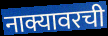
नाक्यावरची